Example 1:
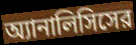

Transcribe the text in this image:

অ্যানালিসিসের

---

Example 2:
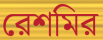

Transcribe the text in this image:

রেশমির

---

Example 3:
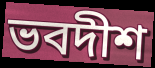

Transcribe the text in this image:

ভবদীশ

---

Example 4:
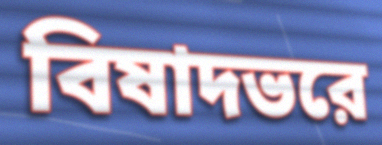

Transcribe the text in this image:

বিষাদভরে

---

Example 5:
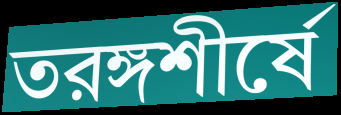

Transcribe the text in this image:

তরঙ্গশীর্ষে